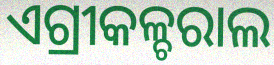
ଏଗ୍ରୀକଳ୍ଚରାଲ